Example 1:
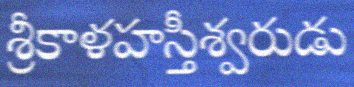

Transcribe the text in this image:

శ్రీకాళహస్తీశ్వరుడు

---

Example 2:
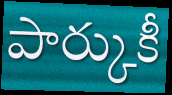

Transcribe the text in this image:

పార్కుకీ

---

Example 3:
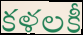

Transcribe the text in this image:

కళలకీ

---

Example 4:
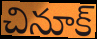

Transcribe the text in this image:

చినూక్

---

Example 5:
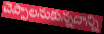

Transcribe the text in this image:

చెప్పాలనుకున్నదాన్ని